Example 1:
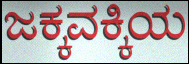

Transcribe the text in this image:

ಜಕ್ಕವಕ್ಕಿಯ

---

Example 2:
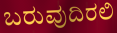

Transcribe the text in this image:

ಬರುವುದಿರಲಿ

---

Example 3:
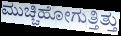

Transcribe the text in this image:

ಮುಚ್ಚಿಹೋಗುತ್ತಿತ್ತು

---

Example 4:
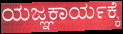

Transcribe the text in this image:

ಯಜ್ಞಕಾರ್ಯಕ್ಕೆ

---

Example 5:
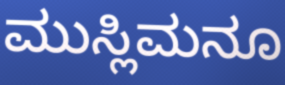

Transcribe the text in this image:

ಮುಸ್ಲಿಮನೂ